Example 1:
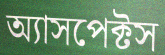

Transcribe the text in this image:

অ্যাসপেক্টস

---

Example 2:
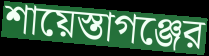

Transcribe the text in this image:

শায়েস্তাগঞ্জের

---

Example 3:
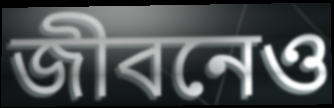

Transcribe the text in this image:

জীবনেও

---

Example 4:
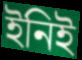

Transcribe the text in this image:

ইনিই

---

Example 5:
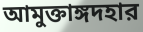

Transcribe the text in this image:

আমুক্তাঙ্গদহার